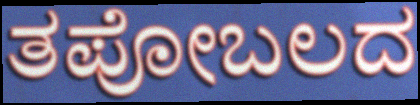
ತಪೋಬಲದ